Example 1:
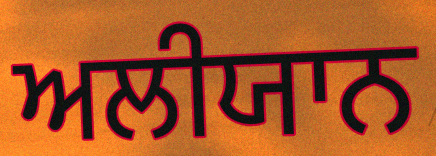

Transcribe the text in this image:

ਅਲੀਯਾਨ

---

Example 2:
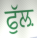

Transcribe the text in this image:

ਫੁੱਲ਼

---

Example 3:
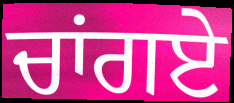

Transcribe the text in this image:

ਚਾਂਗਏ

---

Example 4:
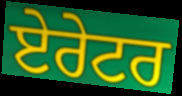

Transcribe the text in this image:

ਏਰੇਟਰ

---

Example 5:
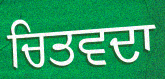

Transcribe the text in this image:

ਚਿਤਵਦਾ